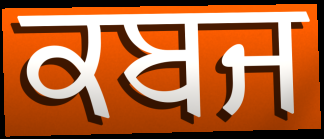
ਕਬਜ